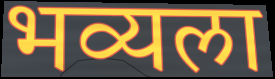
भव्यला